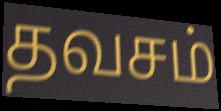
தவசம்